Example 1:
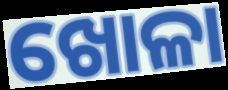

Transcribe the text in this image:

ଖୋଳା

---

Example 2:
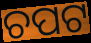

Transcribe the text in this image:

ଚପଟ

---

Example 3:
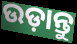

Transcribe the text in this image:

ଉଡ଼ାନ୍ତୁ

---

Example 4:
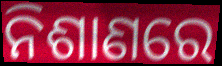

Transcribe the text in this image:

ନିଶାଣରେ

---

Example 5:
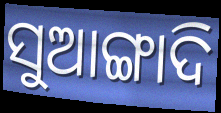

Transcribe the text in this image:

ସୁଆଙ୍ଗାଦି